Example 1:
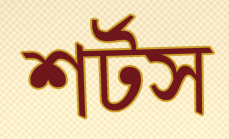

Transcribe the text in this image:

শর্টস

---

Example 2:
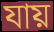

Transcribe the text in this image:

যায়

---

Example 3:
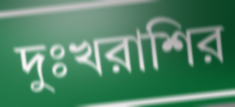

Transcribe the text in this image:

দুঃখরাশির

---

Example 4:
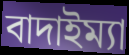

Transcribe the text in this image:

বাদাইম্যা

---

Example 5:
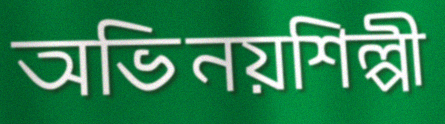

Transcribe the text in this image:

অভিনয়শিল্পী